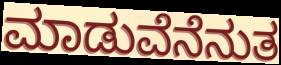
ಮಾಡುವೆನೆನುತ